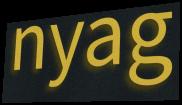
nyag